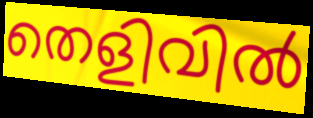
തെളിവിൽ